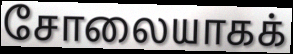
சோலையாகக்